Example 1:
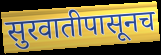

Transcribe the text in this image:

सुरवातीपासूनच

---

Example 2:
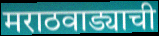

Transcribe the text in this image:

मराठवाड्याची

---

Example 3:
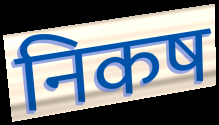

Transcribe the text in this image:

निकष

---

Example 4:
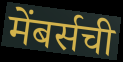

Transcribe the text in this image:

मेंबर्सची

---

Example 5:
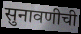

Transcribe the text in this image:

सुनावणीची